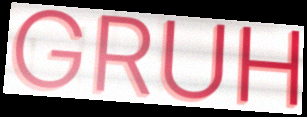
GRUH